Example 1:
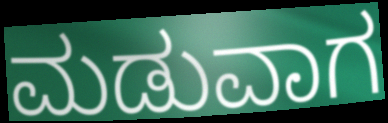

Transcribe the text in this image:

ಮಡುವಾಗ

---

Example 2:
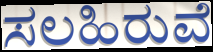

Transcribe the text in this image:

ಸಲಹಿರುವೆ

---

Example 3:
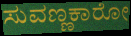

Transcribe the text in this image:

ಸುವಣ್ಣಕಾರೋ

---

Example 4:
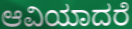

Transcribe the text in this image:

ಆವಿಯಾದರೆ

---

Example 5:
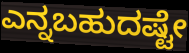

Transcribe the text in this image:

ಎನ್ನಬಹುದಷ್ಟೇ